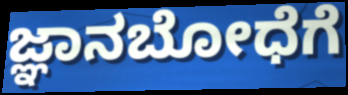
ಜ್ಞಾನಬೋಧೆಗೆ